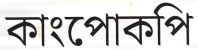
কাংপোকপি